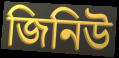
জিনিউ